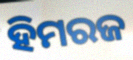
ହିମରଜ